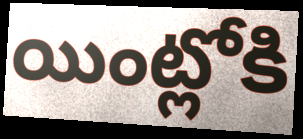
యింట్లోకి